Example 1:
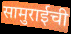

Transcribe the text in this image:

सामुराईची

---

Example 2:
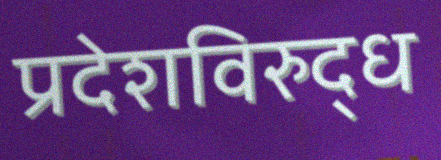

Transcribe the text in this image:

प्रदेशविरुद्ध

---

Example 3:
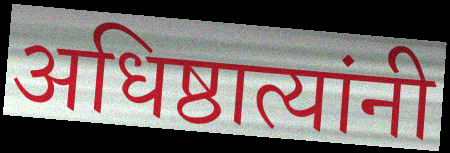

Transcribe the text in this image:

अधिष्ठात्यांनी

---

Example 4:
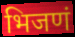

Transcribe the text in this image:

भिजणं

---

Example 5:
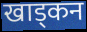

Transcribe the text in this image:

खाड्कन